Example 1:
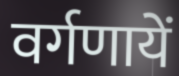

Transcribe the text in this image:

वर्गणायें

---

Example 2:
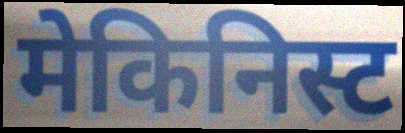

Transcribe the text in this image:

मेकिनिस्ट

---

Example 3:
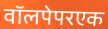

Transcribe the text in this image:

वॉलपेपरएक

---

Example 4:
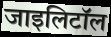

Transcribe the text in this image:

जाइलिटॉल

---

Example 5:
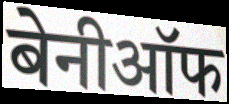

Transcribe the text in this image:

बेनीऑफ